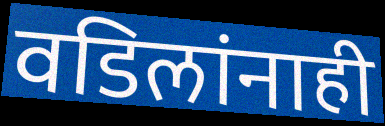
वडिलांनाही